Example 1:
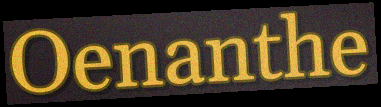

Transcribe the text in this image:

Oenanthe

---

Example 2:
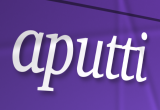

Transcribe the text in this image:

aputti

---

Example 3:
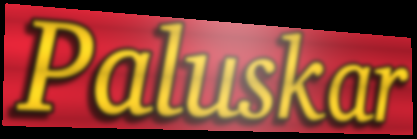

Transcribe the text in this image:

Paluskar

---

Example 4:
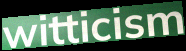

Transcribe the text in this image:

witticism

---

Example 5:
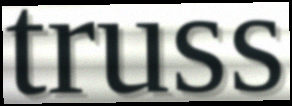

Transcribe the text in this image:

truss